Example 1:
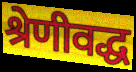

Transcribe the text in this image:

श्रेणीवद्ध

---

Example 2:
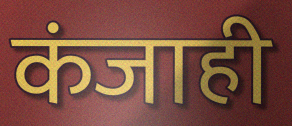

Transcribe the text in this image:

कंजाही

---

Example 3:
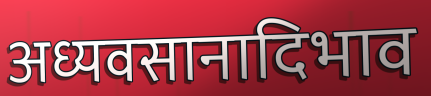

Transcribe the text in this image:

अध्यवसानादिभाव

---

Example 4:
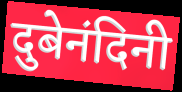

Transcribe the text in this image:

दुबेनंदिनी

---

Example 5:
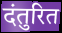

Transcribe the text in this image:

दंतुरित